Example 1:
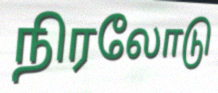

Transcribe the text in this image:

நிரலோடு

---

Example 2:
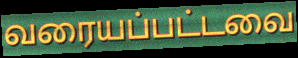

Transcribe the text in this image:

வரையப்பட்டவை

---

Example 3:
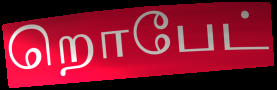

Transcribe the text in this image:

றொபேட்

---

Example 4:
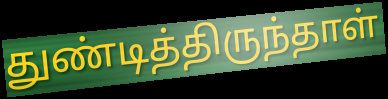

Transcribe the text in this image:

துண்டித்திருந்தாள்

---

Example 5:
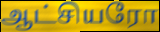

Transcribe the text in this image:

ஆட்சியரோ